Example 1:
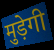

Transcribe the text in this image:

मुड़ेगी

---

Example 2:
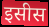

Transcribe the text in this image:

इसीस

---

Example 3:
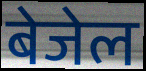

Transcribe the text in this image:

बेजेल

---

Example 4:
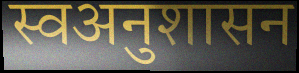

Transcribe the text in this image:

स्वअनुशासन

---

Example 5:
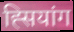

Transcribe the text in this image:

ह्सियांग